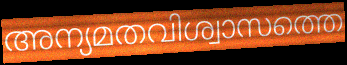
അന്യമതവിശ്വാസത്തെ